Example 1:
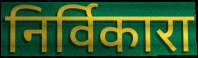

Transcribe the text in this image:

निर्विकारा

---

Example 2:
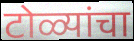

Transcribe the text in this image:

टोळ्यांचा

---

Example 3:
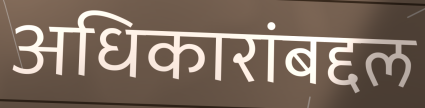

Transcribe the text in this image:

अधिकारांबद्दल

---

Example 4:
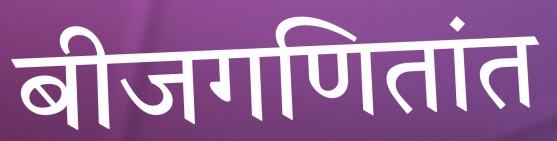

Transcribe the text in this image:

बीजगणितांत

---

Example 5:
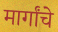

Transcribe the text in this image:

मार्गांचे